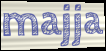
majja